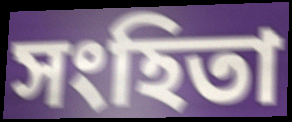
সংহিতা